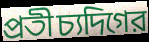
প্রতীচ্যদিগের